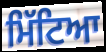
ਮਿੱਟਿਆ